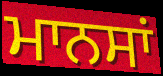
ਮਾਨਸਾਂ